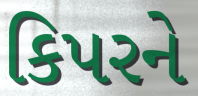
કિપરને